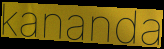
kananda